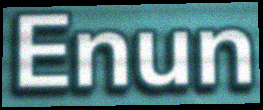
Enun